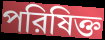
পরিষিক্ত